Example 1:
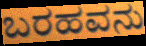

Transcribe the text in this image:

ಬರಹವನು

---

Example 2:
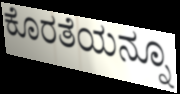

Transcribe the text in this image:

ಕೊರತೆಯನ್ನೂ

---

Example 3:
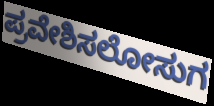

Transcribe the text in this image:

ಪ್ರವೇಶಿಸಲೋಸುಗ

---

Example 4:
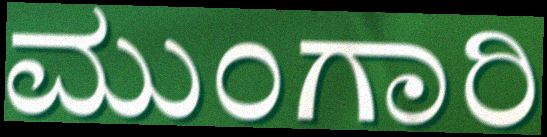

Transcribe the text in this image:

ಮುಂಗಾರಿ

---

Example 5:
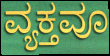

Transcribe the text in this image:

ವ್ಯಕ್ತವೂ